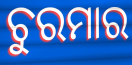
ଚୁରମାର